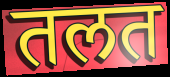
तलत